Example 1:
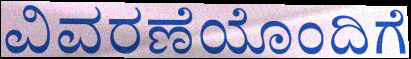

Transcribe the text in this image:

ವಿವರಣೆಯೊಂದಿಗೆ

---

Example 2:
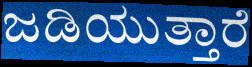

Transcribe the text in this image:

ಜಡಿಯುತ್ತಾರೆ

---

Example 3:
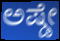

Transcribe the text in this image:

ಅಷ್ಡೇ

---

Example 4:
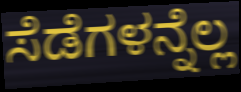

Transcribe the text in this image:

ಸೆಡೆಗಳನ್ನೆಲ್ಲ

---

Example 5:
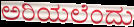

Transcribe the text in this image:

ಅರಿಯಲೆಂದು